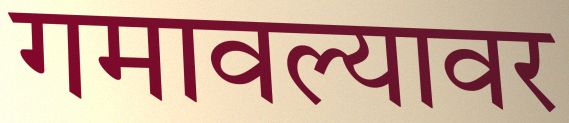
गमावल्यावर